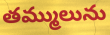
తమ్ములును